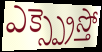
ఎక్స్ప్రెస్తో